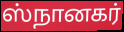
ஸ்நானகர்